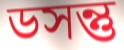
ডসন্তু